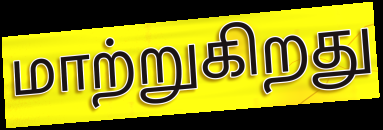
மாற்றுகிறது